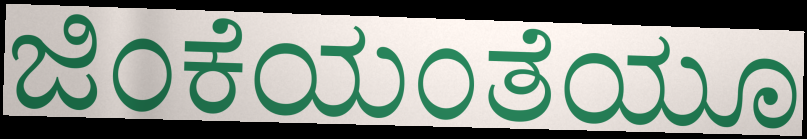
ಜಿಂಕೆಯಂತೆಯೂ